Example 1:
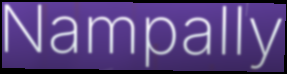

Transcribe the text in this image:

Nampally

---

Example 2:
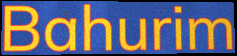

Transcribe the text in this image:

Bahurim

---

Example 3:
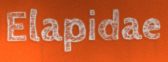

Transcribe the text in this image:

Elapidae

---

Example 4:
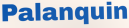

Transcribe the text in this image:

Palanquin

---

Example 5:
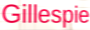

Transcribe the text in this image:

Gillespie